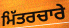
ਮਿੱਤਰਚਾਰੇ